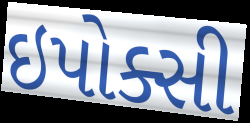
ઇપોક્સી